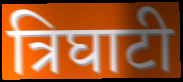
त्रिघाटी